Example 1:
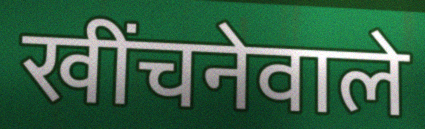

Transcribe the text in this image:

खींचनेवाले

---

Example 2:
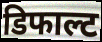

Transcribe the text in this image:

डिफाल्ट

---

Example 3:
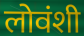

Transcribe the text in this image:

लोवंशी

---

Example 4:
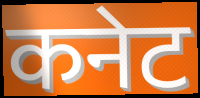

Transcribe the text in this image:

कनेट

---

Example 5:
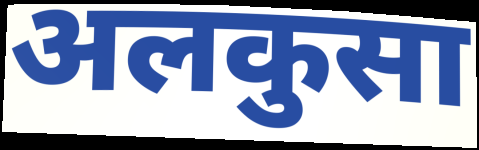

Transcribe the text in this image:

अलकुसा